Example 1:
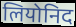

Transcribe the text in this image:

लियोनिद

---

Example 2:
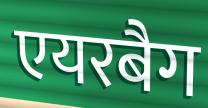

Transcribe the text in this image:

एयरबैग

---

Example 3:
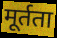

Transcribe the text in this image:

मूर्तता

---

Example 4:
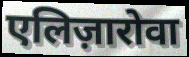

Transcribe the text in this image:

एलिज़ारोवा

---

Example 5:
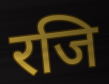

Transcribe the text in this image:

रजि